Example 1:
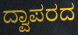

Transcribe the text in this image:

ದ್ವಾಪರದ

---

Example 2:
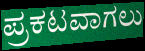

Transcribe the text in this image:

ಪ್ರಕಟವಾಗಲು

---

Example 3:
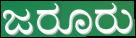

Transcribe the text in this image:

ಜರೂರು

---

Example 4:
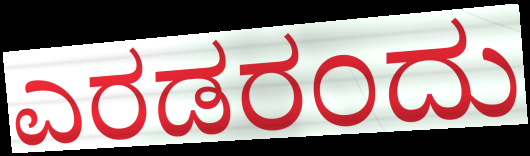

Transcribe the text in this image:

ಎರಡರಂದು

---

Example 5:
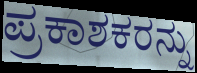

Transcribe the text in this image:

ಪ್ರಕಾಶಕರನ್ನು